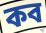
কব